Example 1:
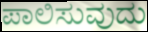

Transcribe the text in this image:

ಪಾಲಿಸುವುದು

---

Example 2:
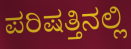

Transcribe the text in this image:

ಪರಿಷತ್ತಿನಲ್ಲಿ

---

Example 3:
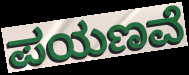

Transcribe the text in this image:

ಪಯಣವೆ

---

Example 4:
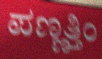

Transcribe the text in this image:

ಪಣ್ಣತ್ತಿಂ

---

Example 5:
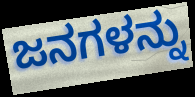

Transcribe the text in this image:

ಜನಗಳನ್ನು